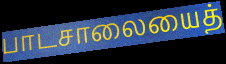
பாடசாலையைத்